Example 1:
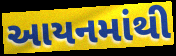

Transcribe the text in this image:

આયનમાંથી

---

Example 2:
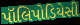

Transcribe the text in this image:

પૉલિપોડિયેસી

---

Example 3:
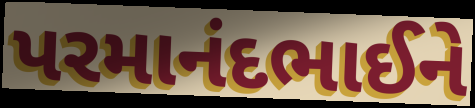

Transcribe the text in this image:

પરમાનંદભાઈને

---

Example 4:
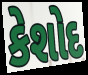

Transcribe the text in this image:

કેશોદ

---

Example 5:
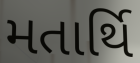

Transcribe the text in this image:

મતાર્થિ